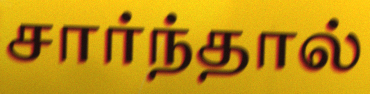
சார்ந்தால்